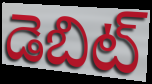
డెబిట్